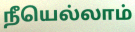
நீயெல்லாம்